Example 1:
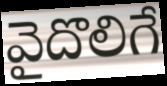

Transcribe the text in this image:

వైదొలిగే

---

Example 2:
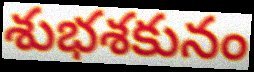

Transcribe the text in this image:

శుభశకునం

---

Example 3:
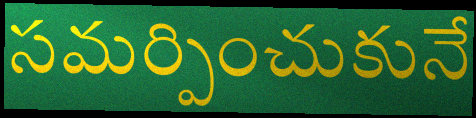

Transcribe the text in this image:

సమర్పించుకునే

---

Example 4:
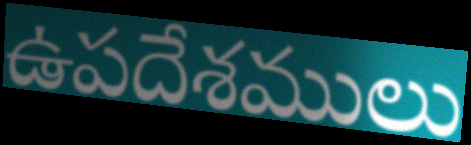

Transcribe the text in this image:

ఉపదేశములు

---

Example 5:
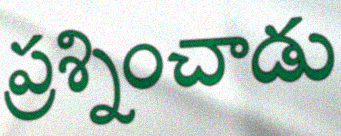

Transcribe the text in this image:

ప్రశ్నించాడు